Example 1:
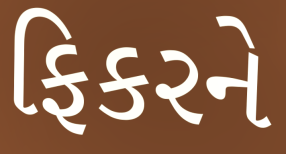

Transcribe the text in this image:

ફિકરને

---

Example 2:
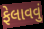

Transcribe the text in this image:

ફેલાવવું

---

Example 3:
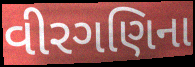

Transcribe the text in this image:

વીરગણિના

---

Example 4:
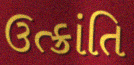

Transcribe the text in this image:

ઉત્ક્રાંતિ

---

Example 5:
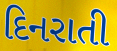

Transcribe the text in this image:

દિનરાતી